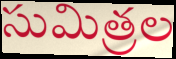
సుమిత్రల